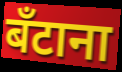
बँटाना